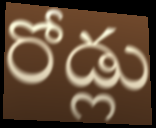
రోడ్లు